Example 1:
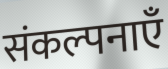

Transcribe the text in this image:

संकल्पनाएँ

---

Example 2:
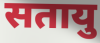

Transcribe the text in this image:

सतायु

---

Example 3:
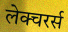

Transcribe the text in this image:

लेक्चरर्स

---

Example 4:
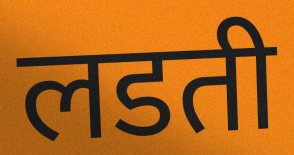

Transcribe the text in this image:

लडती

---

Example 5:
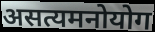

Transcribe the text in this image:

असत्यमनोयोग